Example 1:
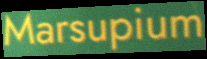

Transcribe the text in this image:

Marsupium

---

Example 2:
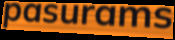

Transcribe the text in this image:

pasurams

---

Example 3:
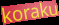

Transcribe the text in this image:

koraku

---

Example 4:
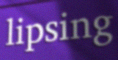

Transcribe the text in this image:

lipsing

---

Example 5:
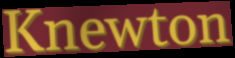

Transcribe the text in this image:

Knewton